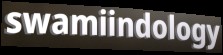
swamiindology